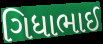
ગિધાભાઈ